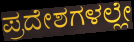
ಪ್ರದೇಶಗಳಲ್ಲೇ